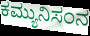
ಕಮ್ಯುನಿಸಂನ